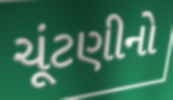
ચૂંટણીનો